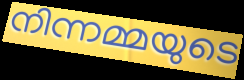
നിന്നമ്മയുടെ